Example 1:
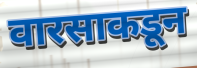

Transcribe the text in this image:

वारसाकडून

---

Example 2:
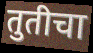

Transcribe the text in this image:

तुतीचा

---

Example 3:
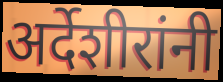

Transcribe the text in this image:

अर्देशीरांनी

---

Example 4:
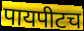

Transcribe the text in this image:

पायपीटच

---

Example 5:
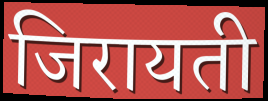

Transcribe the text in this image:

जिरायती